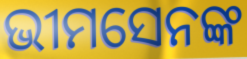
ଭୀମସେନଙ୍କ